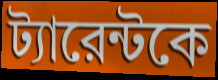
ট্যারেন্টকে